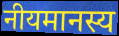
नीयमानस्य